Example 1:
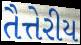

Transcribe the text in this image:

તૈત્તેરીય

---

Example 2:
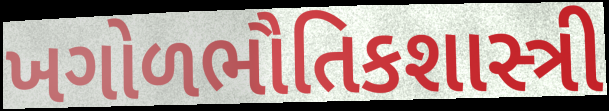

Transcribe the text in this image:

ખગોળભૌતિકશાસ્ત્રી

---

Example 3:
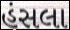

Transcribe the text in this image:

હંસલા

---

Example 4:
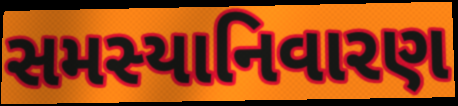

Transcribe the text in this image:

સમસ્યાનિવારણ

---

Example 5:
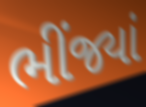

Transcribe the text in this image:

ભીંજ્યાં